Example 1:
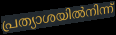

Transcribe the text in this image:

പ്രത്യാശയിൽനിന്ന്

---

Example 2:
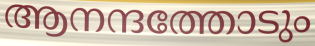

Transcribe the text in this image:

ആനന്ദത്തോടും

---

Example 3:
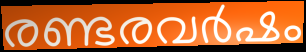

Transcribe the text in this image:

രണ്ടരവർഷം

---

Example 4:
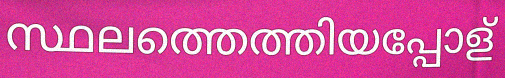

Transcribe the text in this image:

സ്ഥലത്തെത്തിയപ്പോള്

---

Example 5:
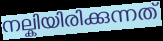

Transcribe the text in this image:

നല്കിയിരിക്കുന്നത്